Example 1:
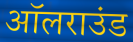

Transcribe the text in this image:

ऑलराउंड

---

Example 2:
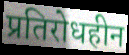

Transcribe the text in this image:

प्रतिरोधहीन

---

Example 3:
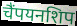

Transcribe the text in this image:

चैंपयनशिप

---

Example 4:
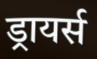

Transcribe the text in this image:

ड्रायर्स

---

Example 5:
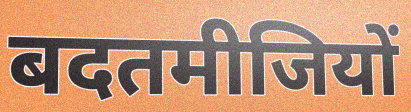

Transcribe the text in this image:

बदतमीजियों